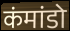
कंमांडो